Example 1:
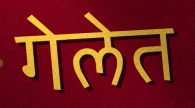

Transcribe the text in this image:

गेलेत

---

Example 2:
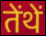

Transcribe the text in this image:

तेंथें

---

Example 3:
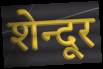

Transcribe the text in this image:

शेन्दूर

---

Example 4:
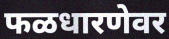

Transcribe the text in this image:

फळधारणेवर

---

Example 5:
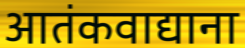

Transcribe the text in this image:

आतंकवाद्याना